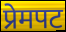
प्रेमपट